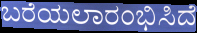
ಬರೆಯಲಾರಂಭಿಸಿದೆ